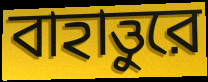
বাহাত্তুরে